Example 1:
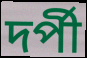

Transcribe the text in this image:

দর্পী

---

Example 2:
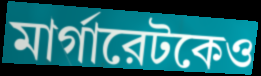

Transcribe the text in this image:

মার্গারেটকেও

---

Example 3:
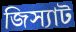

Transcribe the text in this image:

জিস্যাট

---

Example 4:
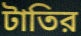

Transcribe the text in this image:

টাতির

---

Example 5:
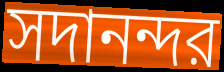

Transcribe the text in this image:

সদানন্দর